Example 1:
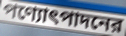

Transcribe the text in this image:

পণ্যোৎপাদনের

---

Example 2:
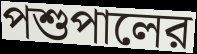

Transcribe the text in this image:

পশুপালের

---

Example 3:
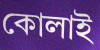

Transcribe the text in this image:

কোলাই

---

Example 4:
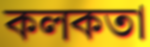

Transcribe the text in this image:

কলকতা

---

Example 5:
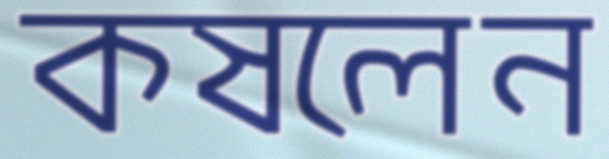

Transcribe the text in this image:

কষলেন